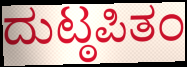
ದುಟ್ಠಪಿತಂ